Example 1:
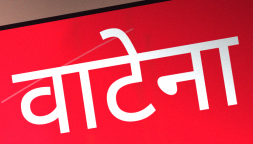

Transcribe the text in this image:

वाटेना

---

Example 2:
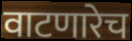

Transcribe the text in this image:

वाटणारेच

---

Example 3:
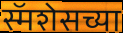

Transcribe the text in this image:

स्मॅशेसच्या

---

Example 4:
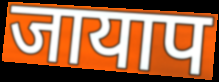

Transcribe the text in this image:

जायाप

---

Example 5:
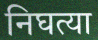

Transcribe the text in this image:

निघत्या